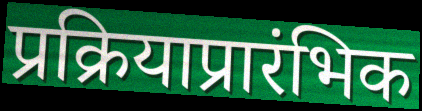
प्रक्रियाप्रारंभिक